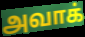
அவாக்